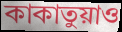
কাকাতুয়াও